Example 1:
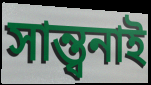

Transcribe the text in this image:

সান্ত্বনাই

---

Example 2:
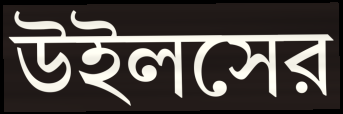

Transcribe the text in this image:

উইলসের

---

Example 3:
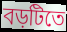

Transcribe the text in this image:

বড়টিতে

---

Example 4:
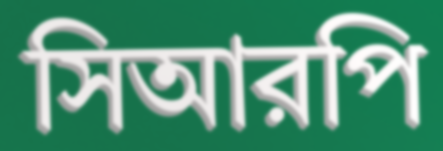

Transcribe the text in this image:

সিআরপি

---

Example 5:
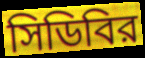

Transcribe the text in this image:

সিডিবির